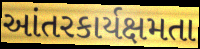
આંતરકાર્યક્ષમતા